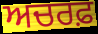
ਅਚਰਫ਼